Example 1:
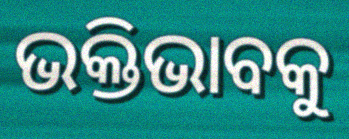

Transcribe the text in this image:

ଭକ୍ତିଭାବକୁ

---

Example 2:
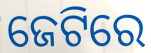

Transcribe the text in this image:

ଜେଟିରେ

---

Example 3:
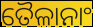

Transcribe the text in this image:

ତୈଳାନାଂ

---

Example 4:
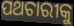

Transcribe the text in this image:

ପଥଚାରୀକୁ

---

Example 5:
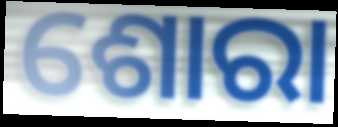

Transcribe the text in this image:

ଶୋରା